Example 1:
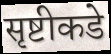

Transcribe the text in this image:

सृष्टीकडे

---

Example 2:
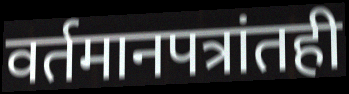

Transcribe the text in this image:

वर्तमानपत्रांतही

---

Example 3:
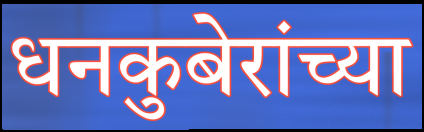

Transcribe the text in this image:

धनकुबेरांच्या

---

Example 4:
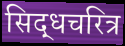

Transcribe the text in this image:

सिद्धचरित्र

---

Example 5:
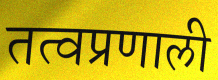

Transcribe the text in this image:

तत्वप्रणाली